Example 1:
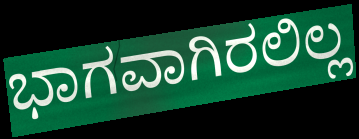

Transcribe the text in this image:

ಭಾಗವಾಗಿರಲಿಲ್ಲ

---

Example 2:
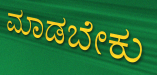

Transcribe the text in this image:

ಮಾಡಬೇಕು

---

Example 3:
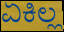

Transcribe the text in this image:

ಏಕಿಲ್ಲ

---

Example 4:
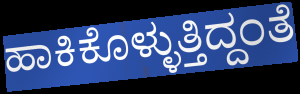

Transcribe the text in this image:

ಹಾಕಿಕೊಳ್ಳುತ್ತಿದ್ದಂತೆ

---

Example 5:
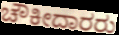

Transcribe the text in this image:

ಚೌಕೀದಾರರು